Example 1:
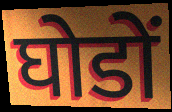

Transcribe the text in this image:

घोडों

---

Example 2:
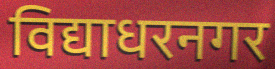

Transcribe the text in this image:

विद्याधरनगर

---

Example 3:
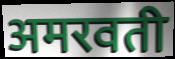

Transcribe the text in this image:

अमरवती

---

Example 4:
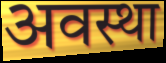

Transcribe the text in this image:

अवस्‍था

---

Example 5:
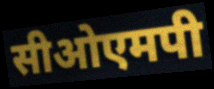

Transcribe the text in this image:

सीओएमपी